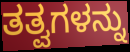
ತತ್ವಗಳನ್ನು